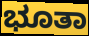
ಭೂತಾ